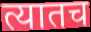
त्यातच